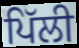
ਪਿੱਲੀ